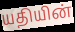
யதியின்